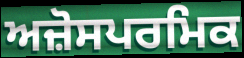
ਅਜ਼ੋਸਪਰਮਿਕ